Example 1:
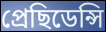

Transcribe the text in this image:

প্ৰেছিডেন্সি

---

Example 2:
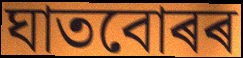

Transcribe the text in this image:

ঘাতবোৰৰ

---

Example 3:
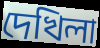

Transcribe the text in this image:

দেখিলা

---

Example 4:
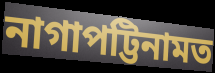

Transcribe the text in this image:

নাগাপট্টিনামত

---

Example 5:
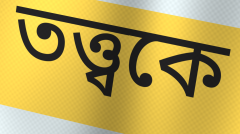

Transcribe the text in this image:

তত্ত্বকে